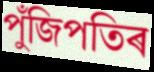
পুঁজিপতিৰ